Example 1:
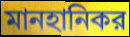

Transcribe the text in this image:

মানহানিকর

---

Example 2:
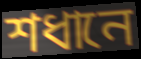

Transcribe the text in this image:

শধানে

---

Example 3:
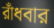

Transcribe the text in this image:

রাঁধবার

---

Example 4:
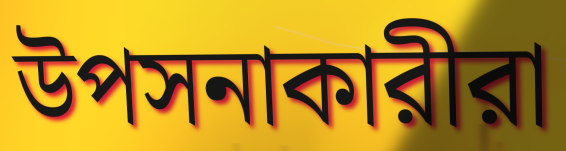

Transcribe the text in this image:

উপসনাকারীরা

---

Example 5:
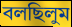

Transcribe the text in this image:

বলছিলুম